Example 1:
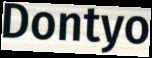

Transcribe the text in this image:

Dontyo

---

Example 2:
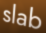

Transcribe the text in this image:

slab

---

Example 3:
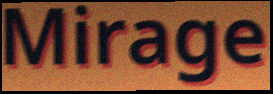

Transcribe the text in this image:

Mirage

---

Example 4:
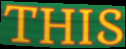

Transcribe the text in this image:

THIS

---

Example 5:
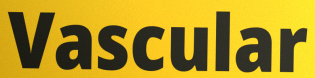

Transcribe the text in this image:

Vascular